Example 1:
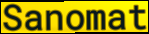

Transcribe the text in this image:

Sanomat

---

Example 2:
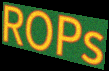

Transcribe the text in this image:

ROPs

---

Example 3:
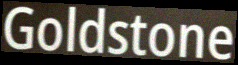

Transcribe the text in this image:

Goldstone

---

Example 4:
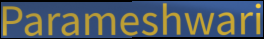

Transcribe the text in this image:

Parameshwari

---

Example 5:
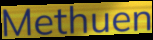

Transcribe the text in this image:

Methuen